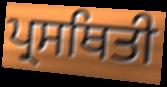
ਪ੍ਰਸਥਿਤੀ